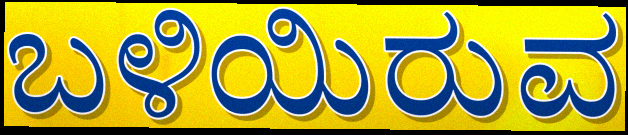
ಬಳಿಯಿರುವ